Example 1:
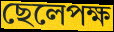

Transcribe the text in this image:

ছেলেপক্ষ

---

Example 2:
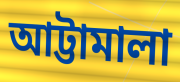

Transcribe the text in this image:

আট্টামালা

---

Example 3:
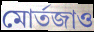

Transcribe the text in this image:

মোর্তজাও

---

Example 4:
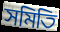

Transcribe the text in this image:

সমিতি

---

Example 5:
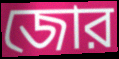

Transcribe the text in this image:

জোর